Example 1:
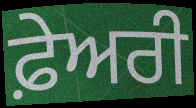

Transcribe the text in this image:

ਫ਼ੇਅਰੀ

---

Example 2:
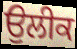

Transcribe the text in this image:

ਉਲੀਕ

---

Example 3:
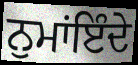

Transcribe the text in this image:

ਨੁਮਾਂਇੰਦੇ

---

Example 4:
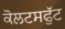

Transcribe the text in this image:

ਕੋਲਟਸਫੁੱਟ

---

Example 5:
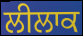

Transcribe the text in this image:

ਲੀਲਾਕ